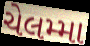
ચેલમ્મા